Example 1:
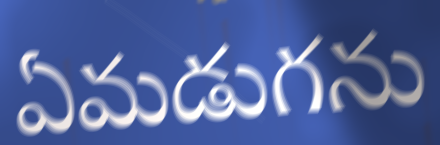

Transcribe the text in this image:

ఏమడుగను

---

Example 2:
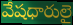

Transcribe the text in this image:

వేషధారులై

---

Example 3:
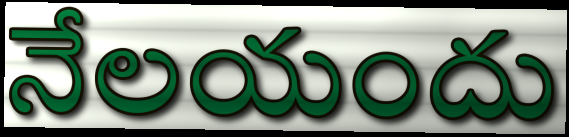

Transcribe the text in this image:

నేలయందు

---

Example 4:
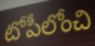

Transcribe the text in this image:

టోపీలోంచి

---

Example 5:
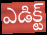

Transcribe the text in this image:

ఎడిక్ట్